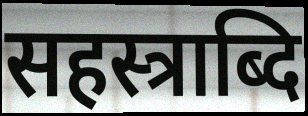
सहस्त्राब्दि